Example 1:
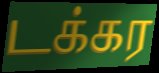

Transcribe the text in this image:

டக்கர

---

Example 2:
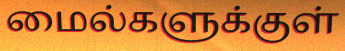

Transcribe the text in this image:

மைல்களுக்குள்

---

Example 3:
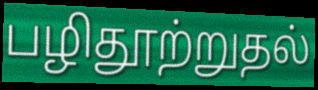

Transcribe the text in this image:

பழிதூற்றுதல்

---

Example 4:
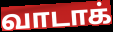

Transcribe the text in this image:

வாடாக்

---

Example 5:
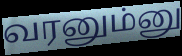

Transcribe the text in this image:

வரனும்னு